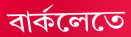
বার্কলেতে